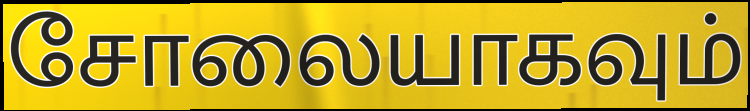
சோலையாகவும்